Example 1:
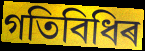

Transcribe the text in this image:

গতিবিধিৰ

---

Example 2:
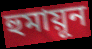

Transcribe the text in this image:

হুমায়ূন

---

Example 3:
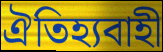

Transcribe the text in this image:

ঐতিহ্যবাহী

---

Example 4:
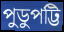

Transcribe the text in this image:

পুডুপট্টি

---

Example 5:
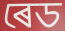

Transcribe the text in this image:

ৰেড